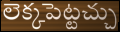
లెక్కపెట్టచ్చు